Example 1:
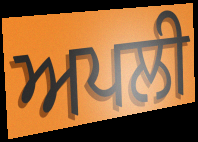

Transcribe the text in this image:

ਅਪਲੀ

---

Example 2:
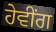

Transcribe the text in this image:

ਹੇਵੀੰਗ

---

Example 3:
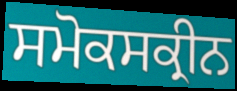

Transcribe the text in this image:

ਸਮੋਕਸਕ੍ਰੀਨ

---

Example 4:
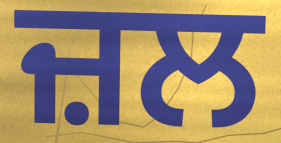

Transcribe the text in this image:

ਜ਼ਲ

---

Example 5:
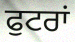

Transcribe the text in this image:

ਫੁਟਰਾਂ